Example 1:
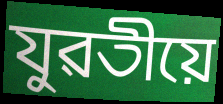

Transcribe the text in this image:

যুৱতীয়ে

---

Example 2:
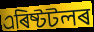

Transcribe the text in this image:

এৰিষ্টটলৰ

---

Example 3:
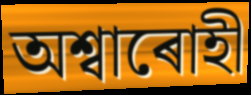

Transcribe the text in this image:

অশ্বাৰোহী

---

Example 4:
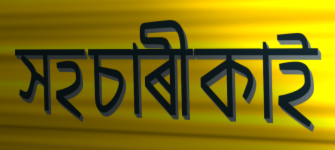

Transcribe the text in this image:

সহচাৰীকাই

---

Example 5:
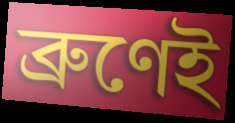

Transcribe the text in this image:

ব্ৰুণেই